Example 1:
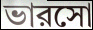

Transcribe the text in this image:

ভারসো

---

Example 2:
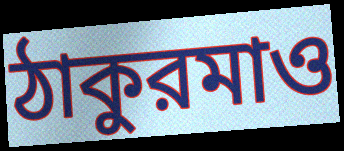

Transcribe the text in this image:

ঠাকুরমাও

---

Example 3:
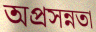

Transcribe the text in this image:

অপ্রসন্নতা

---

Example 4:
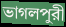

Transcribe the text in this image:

ভাগলপুরী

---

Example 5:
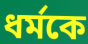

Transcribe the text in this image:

ধর্মকে